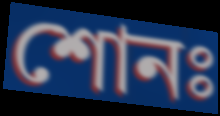
শোনঃ